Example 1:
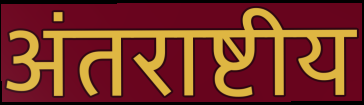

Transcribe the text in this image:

अंतराष्टीय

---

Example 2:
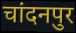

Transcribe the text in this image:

चांदनपुर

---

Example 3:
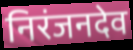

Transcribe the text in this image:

निरंजनदेव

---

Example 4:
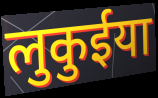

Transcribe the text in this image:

लुकुईया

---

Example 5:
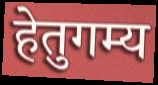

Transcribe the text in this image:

हेतुगम्य